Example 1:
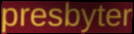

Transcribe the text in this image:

presbyter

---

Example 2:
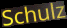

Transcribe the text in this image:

Schulz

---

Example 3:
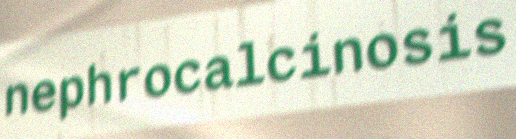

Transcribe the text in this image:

nephrocalcinosis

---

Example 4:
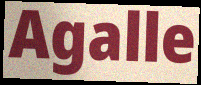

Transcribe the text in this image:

Agalle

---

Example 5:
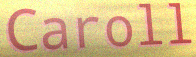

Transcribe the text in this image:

Caroll